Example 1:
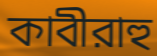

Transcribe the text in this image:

কাবীরাহু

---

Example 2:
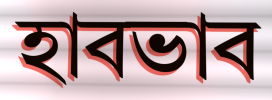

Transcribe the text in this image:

হাবভাব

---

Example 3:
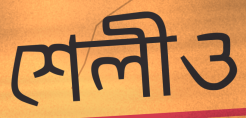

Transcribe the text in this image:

শেলীও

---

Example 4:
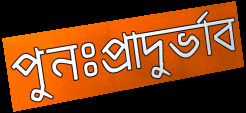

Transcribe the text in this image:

পুনঃপ্রাদুর্ভাব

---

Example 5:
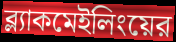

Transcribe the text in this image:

ব্ল্যাকমেইলিংয়ের